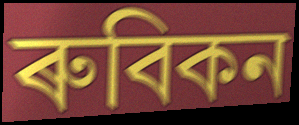
ৰুবিকন